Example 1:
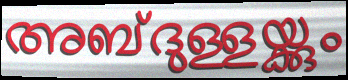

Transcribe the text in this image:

അബ്ദുള്ളയ്ക്കും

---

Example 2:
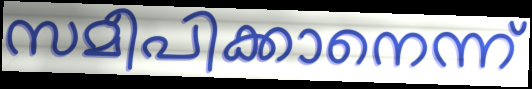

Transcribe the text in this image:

സമീപിക്കാനെന്ന്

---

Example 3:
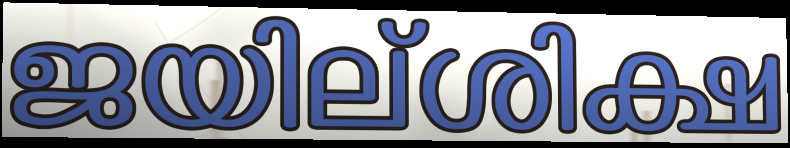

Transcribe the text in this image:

ജയില്ശിക്ഷ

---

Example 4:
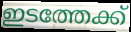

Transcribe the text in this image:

ഇടത്തേക്ക്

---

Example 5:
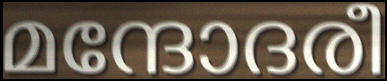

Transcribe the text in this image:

മന്ദോദരീ